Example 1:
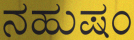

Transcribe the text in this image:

ನಹುಷಂ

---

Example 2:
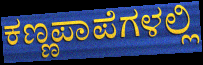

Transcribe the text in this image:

ಕಣ್ಣಪಾಪೆಗಳಲ್ಲಿ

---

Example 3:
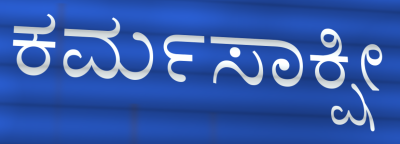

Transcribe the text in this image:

ಕರ್ಮಸಾಕ್ಷೀ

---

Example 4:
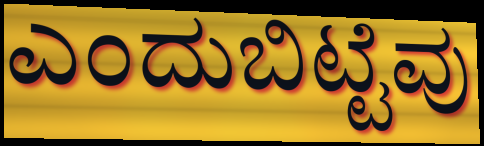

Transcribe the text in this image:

ಎಂದುಬಿಟ್ಟೆವು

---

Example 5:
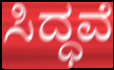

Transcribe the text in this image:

ಸಿದ್ಧವೆ